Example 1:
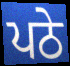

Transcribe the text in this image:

ਪਠੇ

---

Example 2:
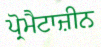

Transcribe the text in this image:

ਪ੍ਰੋਮੈਟਾਜ਼ੀਨ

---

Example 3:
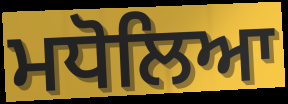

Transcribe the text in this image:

ਮਧੋਲਿਆ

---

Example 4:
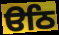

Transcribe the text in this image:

ੳਠਿ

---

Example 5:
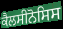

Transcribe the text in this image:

ਕੈਲਸੀਨੋਸਿਸ